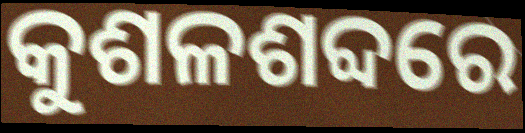
କୁଶଳଶବ୍ଦରେ